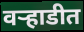
वऱ्हाडीत